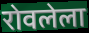
रोवलेला